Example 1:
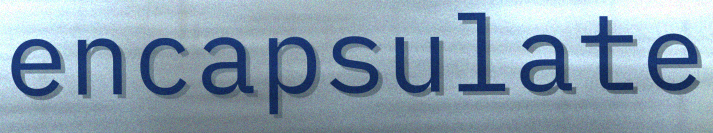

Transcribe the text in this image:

encapsulate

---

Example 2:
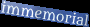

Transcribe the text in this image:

immemorial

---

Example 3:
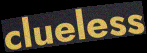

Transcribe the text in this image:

clueless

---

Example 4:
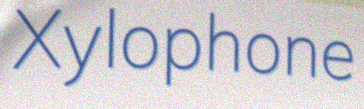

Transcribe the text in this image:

Xylophone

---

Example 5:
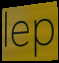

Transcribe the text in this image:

lep